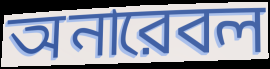
অনারেবল